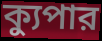
ক্যুপার